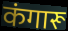
कंगारू